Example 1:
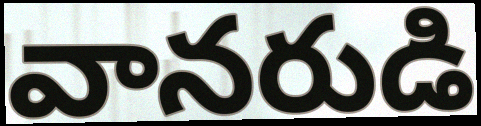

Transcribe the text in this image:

వానరుడి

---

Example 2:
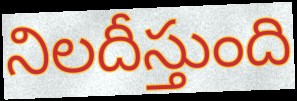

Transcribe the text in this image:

నిలదీస్తుంది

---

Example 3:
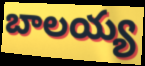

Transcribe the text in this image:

బాలయ్య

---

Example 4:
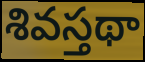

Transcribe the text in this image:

శివస్తథా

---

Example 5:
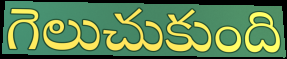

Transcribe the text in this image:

గెలుచుకుంది